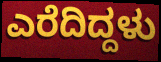
ಎರೆದಿದ್ದಳು